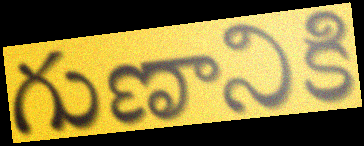
గుణానికి